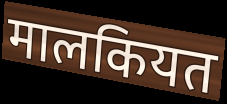
मालकियत